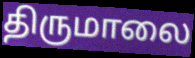
திருமாலை